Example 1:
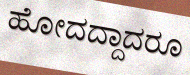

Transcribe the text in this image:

ಹೋದದ್ದಾದರೂ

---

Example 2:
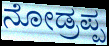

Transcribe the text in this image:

ನೋಡ್ರಪ್ಪ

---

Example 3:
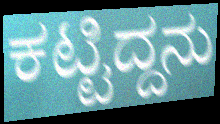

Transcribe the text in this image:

ಕಟ್ಟಿದ್ದನು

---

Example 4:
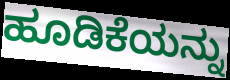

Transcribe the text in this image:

ಹೂಡಿಕೆಯನ್ನು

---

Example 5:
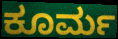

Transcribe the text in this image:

ಕೂರ್ಮ